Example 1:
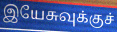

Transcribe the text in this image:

இயேசுவுக்குச்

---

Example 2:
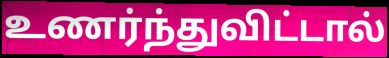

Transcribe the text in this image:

உணர்ந்துவிட்டால்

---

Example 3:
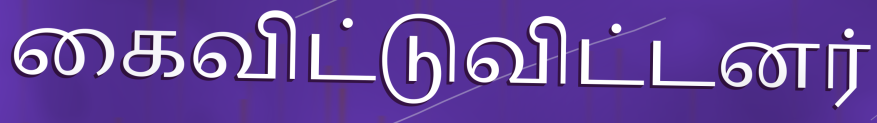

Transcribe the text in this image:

கைவிட்டுவிட்டனர்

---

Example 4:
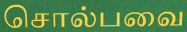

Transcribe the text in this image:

சொல்பவை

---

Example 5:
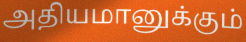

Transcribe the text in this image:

அதியமானுக்கும்